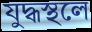
যুদ্ধস্থলে